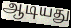
ஆடியது